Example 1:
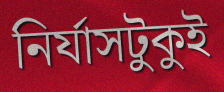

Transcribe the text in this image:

নির্যাসটুকুই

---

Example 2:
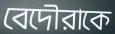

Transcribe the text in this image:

বেদৌরাকে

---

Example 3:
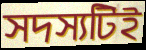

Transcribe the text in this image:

সদস্যটিই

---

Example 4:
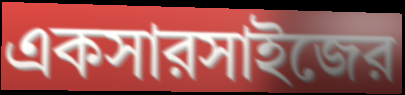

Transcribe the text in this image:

একসারসাইজের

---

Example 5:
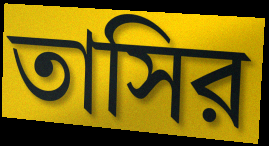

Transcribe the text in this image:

তাসির